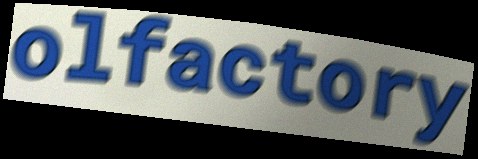
olfactory